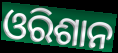
ଓରିଶାନ